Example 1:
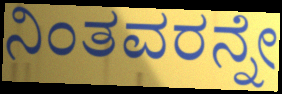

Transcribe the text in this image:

ನಿಂತವರನ್ನೇ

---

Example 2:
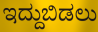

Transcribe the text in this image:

ಇದ್ದುಬಿಡಲು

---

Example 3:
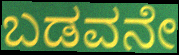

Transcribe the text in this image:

ಬಡವನೇ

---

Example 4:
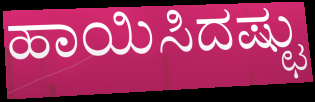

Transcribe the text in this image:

ಹಾಯಿಸಿದಷ್ಟು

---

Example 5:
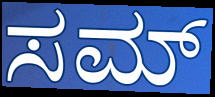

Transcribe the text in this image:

ಸಮ್